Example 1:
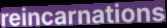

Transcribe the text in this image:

reincarnations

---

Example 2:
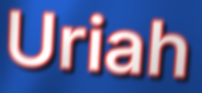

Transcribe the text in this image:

Uriah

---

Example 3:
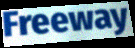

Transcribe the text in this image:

Freeway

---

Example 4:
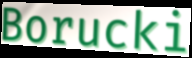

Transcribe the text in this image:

Borucki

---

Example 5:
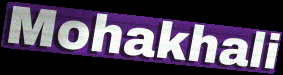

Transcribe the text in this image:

Mohakhali